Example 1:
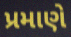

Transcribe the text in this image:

પ્રમાણે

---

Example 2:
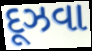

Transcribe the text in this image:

દૂઝવા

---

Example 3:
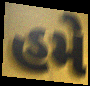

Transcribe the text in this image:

હમે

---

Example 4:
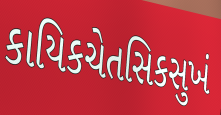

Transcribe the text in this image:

કાયિકચેતસિકસુખં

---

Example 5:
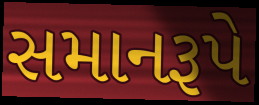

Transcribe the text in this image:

સમાનરૂપે